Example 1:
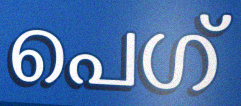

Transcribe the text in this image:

പെഗ്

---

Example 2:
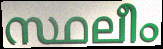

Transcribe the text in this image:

സ്ഥലീം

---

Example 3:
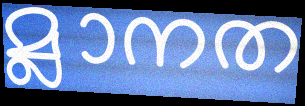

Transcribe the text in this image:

മ്ലാനത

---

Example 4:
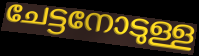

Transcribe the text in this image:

ചേട്ടനോടുള്ള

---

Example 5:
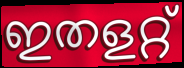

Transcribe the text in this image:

ഇതളറ്റ്